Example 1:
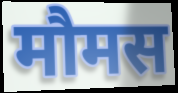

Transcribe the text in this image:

मौमस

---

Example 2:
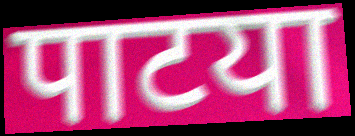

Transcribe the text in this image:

पाटया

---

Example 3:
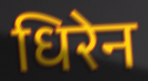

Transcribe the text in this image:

धिरेन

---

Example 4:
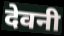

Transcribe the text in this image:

देवनी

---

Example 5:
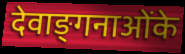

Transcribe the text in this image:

देवाङ्गनाओंके